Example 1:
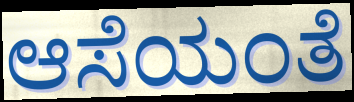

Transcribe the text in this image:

ಆಸೆಯಂತೆ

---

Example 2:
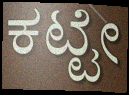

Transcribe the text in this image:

ಕಟ್ಟೇ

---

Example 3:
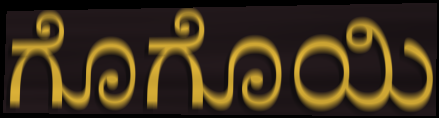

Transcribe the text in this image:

ಗೊಗೊಯಿ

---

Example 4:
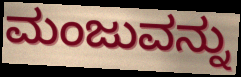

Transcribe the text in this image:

ಮಂಜುವನ್ನು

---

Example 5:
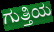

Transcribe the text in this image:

ಗುತ್ತಿಯ